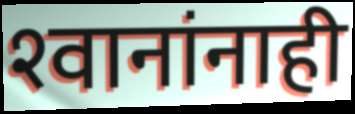
श्वानांनाही